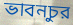
ভাবনচুর